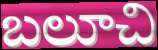
బలూచి